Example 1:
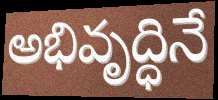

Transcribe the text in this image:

అభివృద్ధినే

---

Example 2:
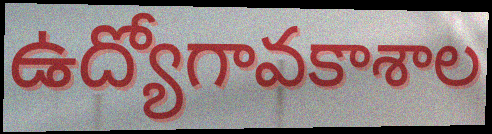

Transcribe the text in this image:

ఉద్యోగావకాశాల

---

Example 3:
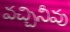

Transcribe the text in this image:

వచ్చినీవు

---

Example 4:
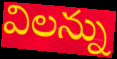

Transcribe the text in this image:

విలన్ను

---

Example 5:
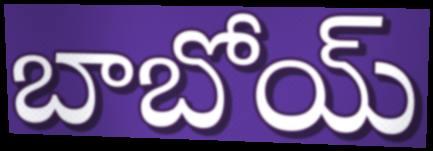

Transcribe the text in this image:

బాబోయ్